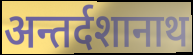
अन्तर्दशानाथ